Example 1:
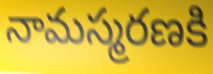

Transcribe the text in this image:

నామస్మరణకి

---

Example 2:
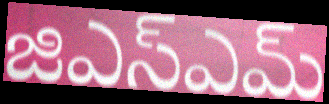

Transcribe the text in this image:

జిఎస్ఎమ్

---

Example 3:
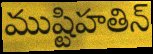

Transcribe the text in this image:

ముష్టిహతిన్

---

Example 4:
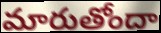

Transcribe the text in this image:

మారుతోందా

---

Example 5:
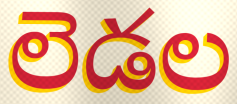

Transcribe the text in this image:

లెడల